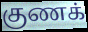
குணக்